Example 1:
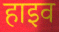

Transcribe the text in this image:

हाइव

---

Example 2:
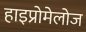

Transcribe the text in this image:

हाइप्रोमेलोज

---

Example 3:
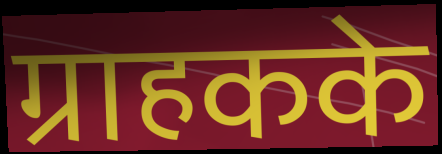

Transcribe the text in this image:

ग्राहकके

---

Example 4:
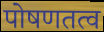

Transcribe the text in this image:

पोषणतत्व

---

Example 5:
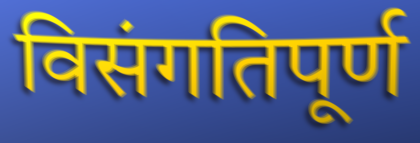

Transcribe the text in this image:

विसंगतिपूर्ण